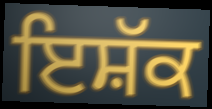
ਇਸ਼ੱਕ